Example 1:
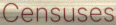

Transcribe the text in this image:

Censuses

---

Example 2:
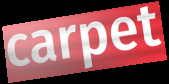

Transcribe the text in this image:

carpet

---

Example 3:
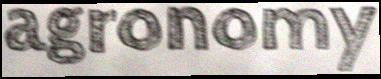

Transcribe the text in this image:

agronomy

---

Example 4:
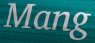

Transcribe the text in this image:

Mang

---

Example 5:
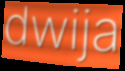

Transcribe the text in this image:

dwija